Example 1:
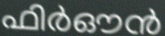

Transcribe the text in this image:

ഫിർഔൻ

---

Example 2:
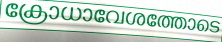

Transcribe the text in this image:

ക്രോധാവേശത്തോടെ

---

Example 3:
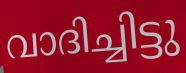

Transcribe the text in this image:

വാദിച്ചിട്ടു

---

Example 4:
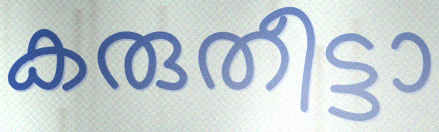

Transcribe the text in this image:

കരുതീട്ടാ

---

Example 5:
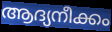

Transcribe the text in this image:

ആദ്യനീക്കം